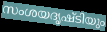
സംശയദൃഷ്ടിയും